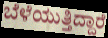
ಬೆಳೆಯುತ್ತಿದ್ದಾರೆ